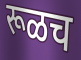
रूळच